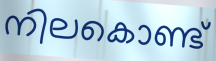
നിലകൊണ്ട്